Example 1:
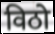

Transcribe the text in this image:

विठो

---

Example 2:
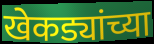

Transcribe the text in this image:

खेकड्यांच्या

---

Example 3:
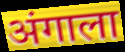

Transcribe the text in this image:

अंगाला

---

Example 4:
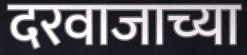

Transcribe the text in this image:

दरवाजाच्या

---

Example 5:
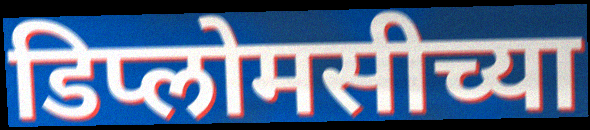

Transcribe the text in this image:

डिप्लोमसीच्या